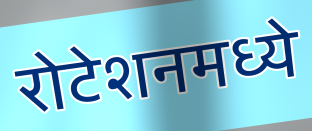
रोटेशनमध्ये